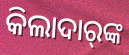
କିଲାଦାର୍‍ଙ୍କ